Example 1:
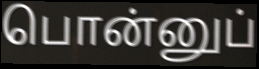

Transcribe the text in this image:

பொன்னுப்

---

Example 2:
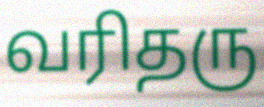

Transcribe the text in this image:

வரிதரு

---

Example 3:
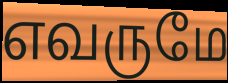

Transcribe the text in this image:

எவருமே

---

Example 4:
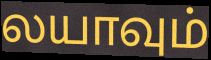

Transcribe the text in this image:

லயாவும்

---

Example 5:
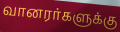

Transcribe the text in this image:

வானரர்களுக்கு